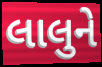
લાલુને